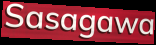
Sasagawa